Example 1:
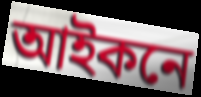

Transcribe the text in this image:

আইকনে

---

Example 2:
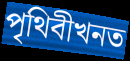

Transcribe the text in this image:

পৃথিবীখনত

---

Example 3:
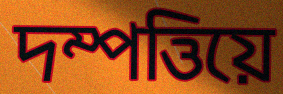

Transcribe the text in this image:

দম্পত্তিয়ে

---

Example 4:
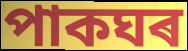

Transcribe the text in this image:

পাকঘৰ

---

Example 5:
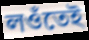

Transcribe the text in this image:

লওঁতেই